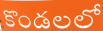
కొండలలో